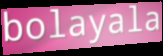
bolayala